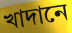
খাদানে